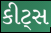
કીટ્સ